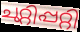
ചുറ്റിപ്പറ്റി